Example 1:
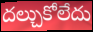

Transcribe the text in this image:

దల్చుకోలేదు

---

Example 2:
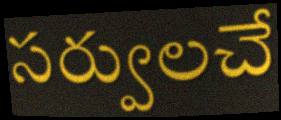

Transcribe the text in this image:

సర్వులచే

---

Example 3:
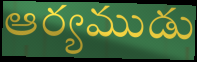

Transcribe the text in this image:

ఆర్యముడు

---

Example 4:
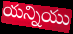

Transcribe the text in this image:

యన్నియు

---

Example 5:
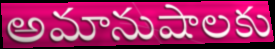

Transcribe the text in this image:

అమానుషాలకు